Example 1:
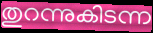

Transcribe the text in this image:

തുറന്നുകിടന്ന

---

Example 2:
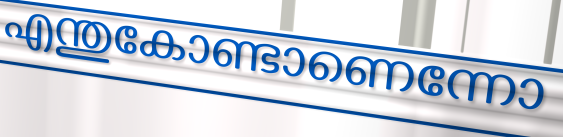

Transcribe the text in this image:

എന്തുകോണ്ടാണെന്നോ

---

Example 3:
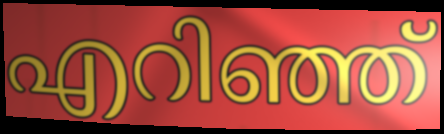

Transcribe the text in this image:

എറിഞ്ഞ്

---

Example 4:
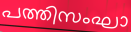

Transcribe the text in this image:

പത്തിസംഘാ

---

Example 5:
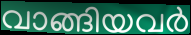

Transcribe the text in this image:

വാങ്ങിയവർ